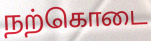
நற்கொடை